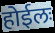
होईलः